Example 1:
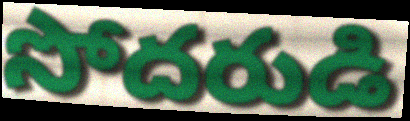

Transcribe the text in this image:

సోదరుడి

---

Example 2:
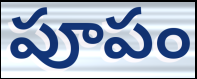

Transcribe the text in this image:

పూపం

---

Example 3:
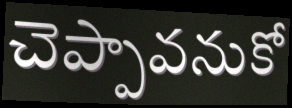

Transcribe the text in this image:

చెప్పావనుకో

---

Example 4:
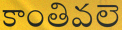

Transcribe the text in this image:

కాంతివలె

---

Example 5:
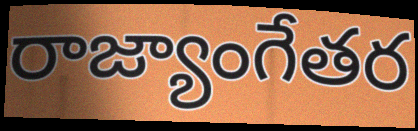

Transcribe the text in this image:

రాజ్యాంగేతర